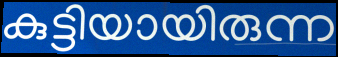
കുട്ടിയായിരുന്ന